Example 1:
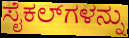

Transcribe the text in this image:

ಸೈಕಲ್‌ಗಳನ್ನು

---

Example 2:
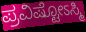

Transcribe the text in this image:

ಪ್ರವಿಷ್ಟೋಽಸ್ಮಿ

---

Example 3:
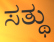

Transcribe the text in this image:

ಸತ್ಥು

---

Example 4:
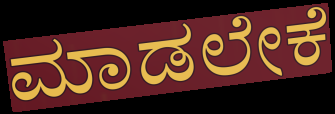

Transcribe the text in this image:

ಮಾಡಲೇಕೆ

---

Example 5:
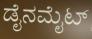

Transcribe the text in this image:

ಡೈನಮೈಟ್